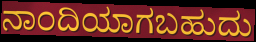
ನಾಂದಿಯಾಗಬಹುದು